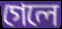
গেলে